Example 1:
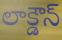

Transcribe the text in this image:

లాక్డౌన్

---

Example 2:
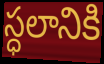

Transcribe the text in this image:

స్ధలానికి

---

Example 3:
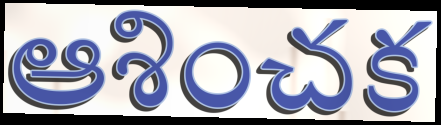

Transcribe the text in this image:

ఆశించక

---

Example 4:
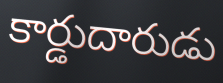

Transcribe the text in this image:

కార్డుదారుడు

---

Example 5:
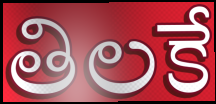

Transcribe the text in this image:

తిలకే